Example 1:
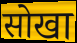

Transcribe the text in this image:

सोखा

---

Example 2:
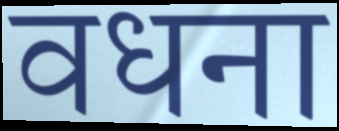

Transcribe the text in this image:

वधना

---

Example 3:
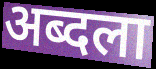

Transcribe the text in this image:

अब्दला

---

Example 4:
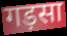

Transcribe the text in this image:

गड़सा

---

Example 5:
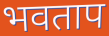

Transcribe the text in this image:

भवताप